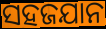
ସହଜଯାନ